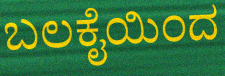
ಬಲಕೈಯಿಂದ